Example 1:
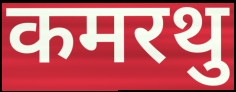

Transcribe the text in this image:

कमरथु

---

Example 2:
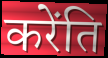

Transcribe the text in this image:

करेंति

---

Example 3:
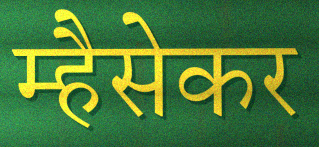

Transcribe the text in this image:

म्हैसेकर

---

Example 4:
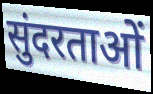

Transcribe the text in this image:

सुंदरताओं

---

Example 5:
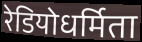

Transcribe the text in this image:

रेडियोधर्मिता